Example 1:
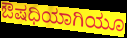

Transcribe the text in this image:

ಔಷಧಿಯಾಗಿಯೂ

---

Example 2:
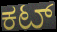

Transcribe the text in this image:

ಕಟ್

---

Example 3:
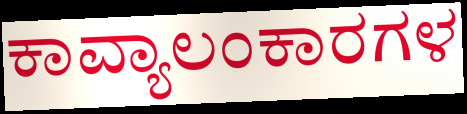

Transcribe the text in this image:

ಕಾವ್ಯಾಲಂಕಾರಗಳ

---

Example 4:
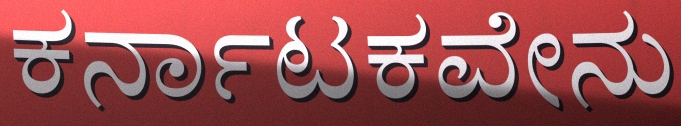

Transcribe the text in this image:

ಕರ್ನಾಟಕವೇನು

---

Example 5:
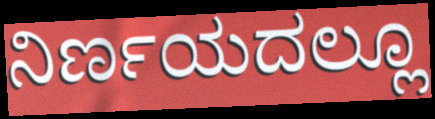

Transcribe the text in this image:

ನಿರ್ಣಯದಲ್ಲೂ